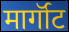
मार्गॉट